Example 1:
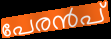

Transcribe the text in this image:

പേരൻപ്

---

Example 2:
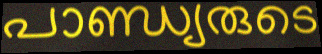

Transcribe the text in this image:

പാണ്ഡ്യരുടെ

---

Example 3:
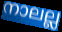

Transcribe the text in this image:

നാലല്ല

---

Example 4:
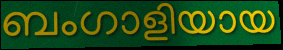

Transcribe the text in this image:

ബംഗാളിയായ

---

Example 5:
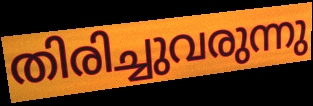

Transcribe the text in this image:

തിരിച്ചുവരുന്നു